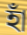
হাঁ